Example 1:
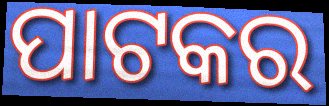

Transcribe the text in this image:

ପାଟକର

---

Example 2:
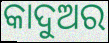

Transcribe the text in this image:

କାଦୁଅର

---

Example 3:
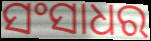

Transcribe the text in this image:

ସଂସାଧର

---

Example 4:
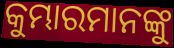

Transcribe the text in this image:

କୁମ୍ଭାରମାନଙ୍କୁ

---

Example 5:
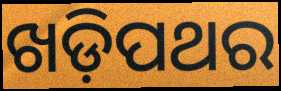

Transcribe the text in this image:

ଖଡ଼ିପଥର